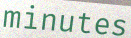
minutes